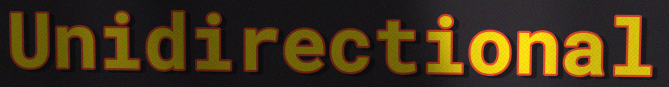
Unidirectional